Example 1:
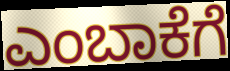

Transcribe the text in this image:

ಎಂಬಾಕೆಗೆ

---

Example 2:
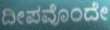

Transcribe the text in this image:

ದೀಪವೊಂದೇ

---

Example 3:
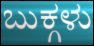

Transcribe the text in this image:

ಬುಕ್ಗಳು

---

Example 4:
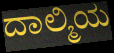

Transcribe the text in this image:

ದಾಲ್ಮಿಯ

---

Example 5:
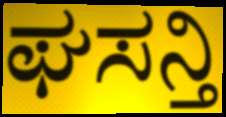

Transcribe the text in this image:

ಘಸನ್ತಿ